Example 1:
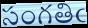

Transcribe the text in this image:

సంగతిఁ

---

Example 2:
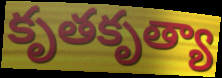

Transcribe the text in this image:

కృతకృత్యా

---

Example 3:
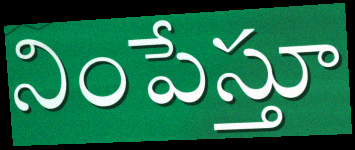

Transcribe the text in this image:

నింపేస్తూ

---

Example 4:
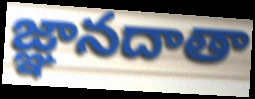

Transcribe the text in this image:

జ్ఞానదాతా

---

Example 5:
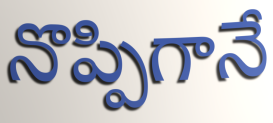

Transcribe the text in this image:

నొప్పిగానే